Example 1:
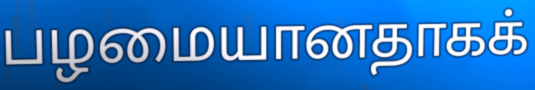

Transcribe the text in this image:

பழமையானதாகக்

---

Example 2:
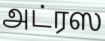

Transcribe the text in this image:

அட்ரஸ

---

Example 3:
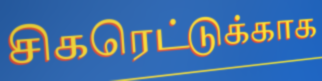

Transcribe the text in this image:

சிகரெட்டுக்காக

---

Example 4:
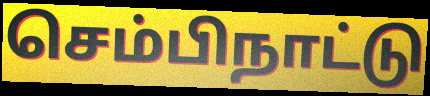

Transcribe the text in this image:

செம்பிநாட்டு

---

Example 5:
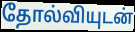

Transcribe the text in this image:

தோல்வியுடன்